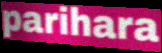
parihara